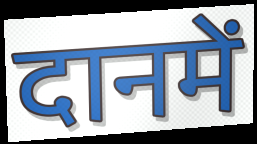
दानमें